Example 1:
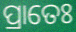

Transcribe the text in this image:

ପ୍ରାତେଃ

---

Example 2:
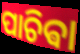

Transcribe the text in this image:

ପାଚିଵା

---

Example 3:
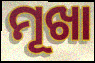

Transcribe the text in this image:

ମୂଖା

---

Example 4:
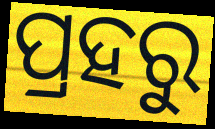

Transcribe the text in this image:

ପ୍ରହରୁ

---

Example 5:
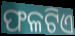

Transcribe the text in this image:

ଫଳଟିଏ